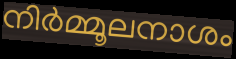
നിർമ്മൂലനാശം